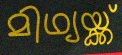
മിഥ്യയ്ക്ക്